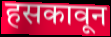
हसकावून